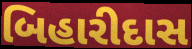
બિહારીદાસ